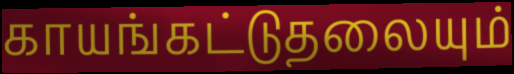
காயங்கட்டுதலையும்